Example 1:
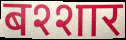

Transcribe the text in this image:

बश्शार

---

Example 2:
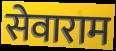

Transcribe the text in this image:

सेवाराम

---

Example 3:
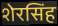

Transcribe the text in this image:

शेरसिंह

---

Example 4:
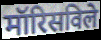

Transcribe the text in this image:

मॉरिसविले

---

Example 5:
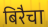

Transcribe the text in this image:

बिरैचा